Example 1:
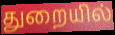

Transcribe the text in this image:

துறையில்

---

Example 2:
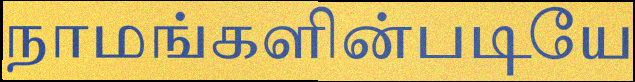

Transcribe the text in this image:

நாமங்களின்படியே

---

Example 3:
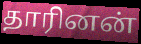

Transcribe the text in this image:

தாரினன்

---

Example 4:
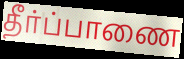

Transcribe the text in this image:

தீர்ப்பாணை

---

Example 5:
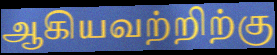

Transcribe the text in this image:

ஆகியவற்றிற்கு